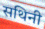
सथिनी